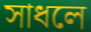
সাধলে